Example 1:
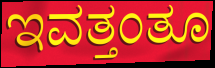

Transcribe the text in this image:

ಇವತ್ತಂತೂ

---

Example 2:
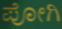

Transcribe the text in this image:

ಪೋಗಿ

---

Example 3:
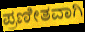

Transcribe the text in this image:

ಪ್ರಣೀತವಾಗಿ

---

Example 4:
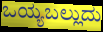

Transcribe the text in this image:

ಒಯ್ಯಬಲ್ಲುದು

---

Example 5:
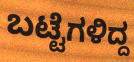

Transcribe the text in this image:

ಬಟ್ಟೆಗಳಿದ್ದ